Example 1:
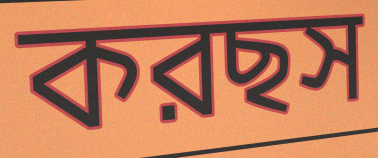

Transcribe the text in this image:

করছস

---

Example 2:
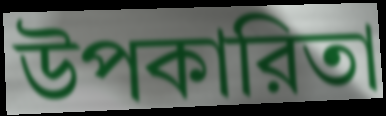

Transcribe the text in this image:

উপকারিতা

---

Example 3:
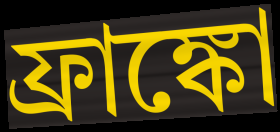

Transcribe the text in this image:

ফ্রাঙ্কো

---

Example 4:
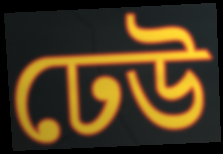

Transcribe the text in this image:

ঢেউ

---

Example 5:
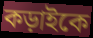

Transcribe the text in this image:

কড়াইকে